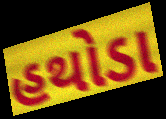
હથોડા